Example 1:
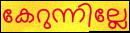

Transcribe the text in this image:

കേറുന്നില്ലേ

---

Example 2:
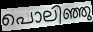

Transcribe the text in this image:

പൊലിഞ്ഞു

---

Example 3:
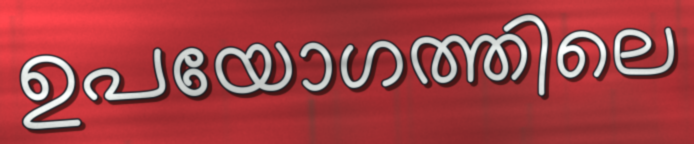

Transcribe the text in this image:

ഉപയോഗത്തിലെ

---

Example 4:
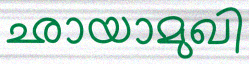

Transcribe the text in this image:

ഛായാമുഖി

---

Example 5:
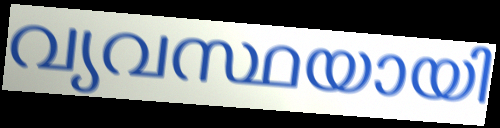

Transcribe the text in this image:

വ്യവസ്ഥയായി